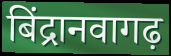
बिंद्रानवागढ़